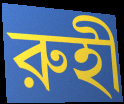
রুহী